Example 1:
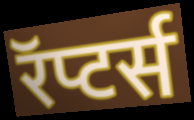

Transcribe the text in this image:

रॅप्टर्स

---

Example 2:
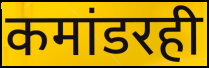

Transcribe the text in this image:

कमांडरही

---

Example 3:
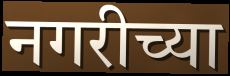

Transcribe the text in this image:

नगरीच्या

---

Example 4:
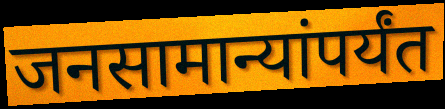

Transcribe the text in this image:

जनसामान्यांपर्यंत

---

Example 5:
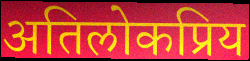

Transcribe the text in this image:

अतिलोकप्रिय